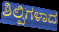
ಶಿಲ್ಪಿಗಳಾದ